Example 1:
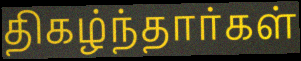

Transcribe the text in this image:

திகழ்ந்தார்கள்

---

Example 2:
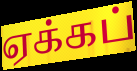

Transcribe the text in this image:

ஏக்கப்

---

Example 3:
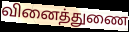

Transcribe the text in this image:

வினைத்துணை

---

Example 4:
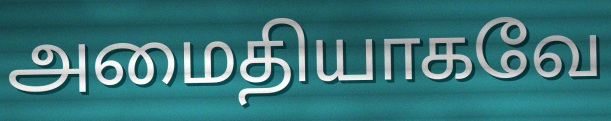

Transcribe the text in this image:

அமைதியாகவே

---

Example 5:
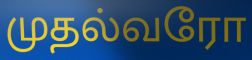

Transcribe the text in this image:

முதல்வரோ